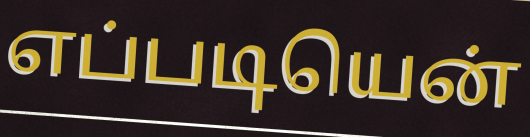
எப்படியென்